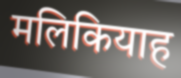
मलिकियाह